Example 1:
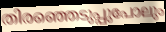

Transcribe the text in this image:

തിരഞ്ഞെടുപ്പുപോലും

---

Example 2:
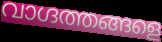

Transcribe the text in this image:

വാഗ്ദത്തങ്ങളെ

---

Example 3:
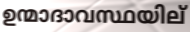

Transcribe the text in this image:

ഉന്മാദാവസ്ഥയില്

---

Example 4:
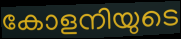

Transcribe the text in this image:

കോളനിയുടെ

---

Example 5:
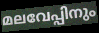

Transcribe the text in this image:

മലവേപ്പിനും